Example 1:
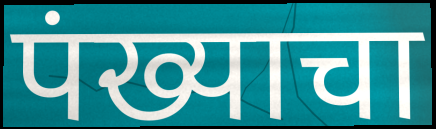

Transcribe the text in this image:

पंख्याचा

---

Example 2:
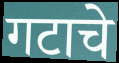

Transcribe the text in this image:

गटाचे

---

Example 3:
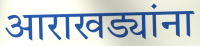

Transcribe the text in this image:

आराखड्यांना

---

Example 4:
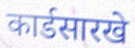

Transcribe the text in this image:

कार्डसारखे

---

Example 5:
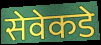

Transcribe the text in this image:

सेवेकडे